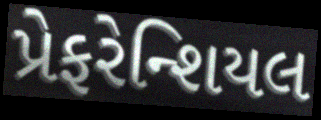
પ્રેફરેન્શિયલ